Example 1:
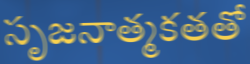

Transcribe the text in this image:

సృజనాత్మకతతో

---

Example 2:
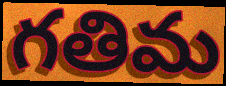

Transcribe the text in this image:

గతిమ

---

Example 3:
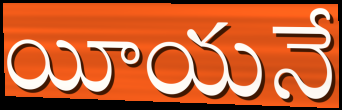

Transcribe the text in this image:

యీయనే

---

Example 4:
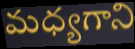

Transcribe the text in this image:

మధ్యగాని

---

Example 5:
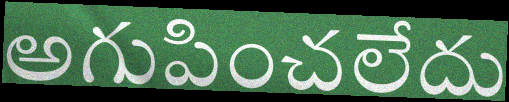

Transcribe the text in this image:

అగుపించలేదు